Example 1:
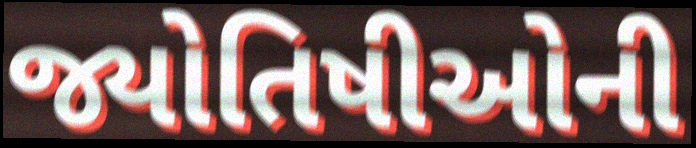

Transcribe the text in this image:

જ્યોતિષીઓની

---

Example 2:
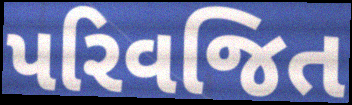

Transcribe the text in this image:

પરિવજિત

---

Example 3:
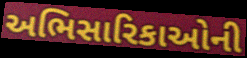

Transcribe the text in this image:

અભિસારિકાઓની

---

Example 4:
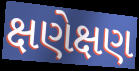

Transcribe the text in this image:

ક્ષણેક્ષણ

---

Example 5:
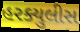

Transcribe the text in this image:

હરક્યુલીસ